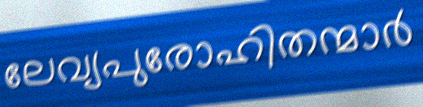
ലേവ്യപുരോഹിതന്മാർ